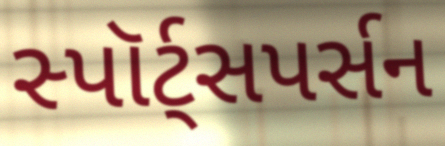
સ્પૉર્ટ્સપર્સન